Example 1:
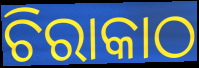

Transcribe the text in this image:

ଚିରାକାଠ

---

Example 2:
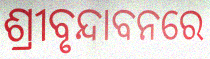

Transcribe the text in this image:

ଶ୍ରୀବୃନ୍ଦାବନରେ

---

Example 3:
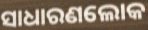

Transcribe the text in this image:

ସାଧାରଣଲୋକ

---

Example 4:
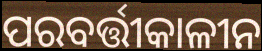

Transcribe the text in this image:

ପରବର୍ତ୍ତୀକାଳୀନ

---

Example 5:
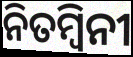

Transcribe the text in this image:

ନିତମ୍ବିନୀ